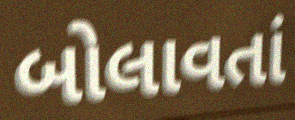
બોલાવતાં